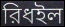
রিধইল